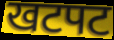
खटपट